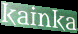
kainka